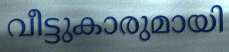
വീട്ടുകാരുമായി